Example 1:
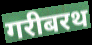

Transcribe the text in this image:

गरीबरथ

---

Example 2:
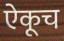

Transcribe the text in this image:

ऐकूच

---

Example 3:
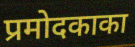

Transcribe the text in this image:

प्रमोदकाका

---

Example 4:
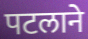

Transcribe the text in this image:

पटलाने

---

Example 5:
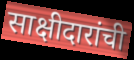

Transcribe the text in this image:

साक्षीदारांची